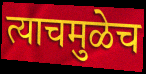
त्याचमुळेच